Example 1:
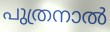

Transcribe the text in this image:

പുത്രനാൽ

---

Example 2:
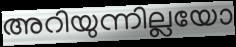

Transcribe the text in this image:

അറിയുന്നില്ലയോ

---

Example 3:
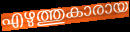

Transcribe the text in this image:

എഴുത്തുകാരായ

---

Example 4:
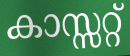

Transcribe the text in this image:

കാസ്സറ്റ്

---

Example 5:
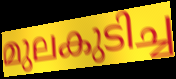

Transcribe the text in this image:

മുലകുടിച്ച